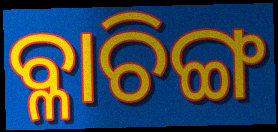
ବ୍ଳାଚିଙ୍ଗ